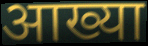
आख्या